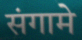
संगामे